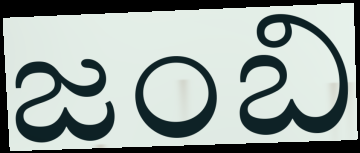
జంబి